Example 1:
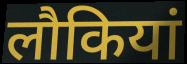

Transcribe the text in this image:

लौकियां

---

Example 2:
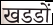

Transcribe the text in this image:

खडडों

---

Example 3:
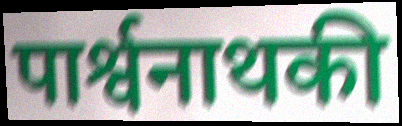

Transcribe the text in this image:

पार्श्वनाथकी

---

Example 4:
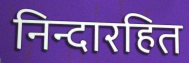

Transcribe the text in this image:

निन्दारहित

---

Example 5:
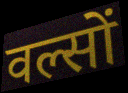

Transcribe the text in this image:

वल्सों